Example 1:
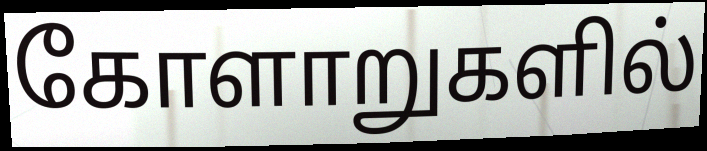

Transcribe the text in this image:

கோளாறுகளில்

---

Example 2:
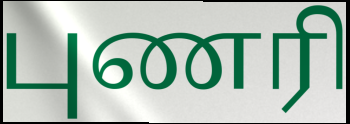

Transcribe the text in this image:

புணரி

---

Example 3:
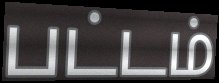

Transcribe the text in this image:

பட்டம்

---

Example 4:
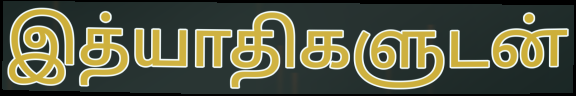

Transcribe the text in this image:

இத்யாதிகளுடன்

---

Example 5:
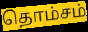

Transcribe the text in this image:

தொம்சம்